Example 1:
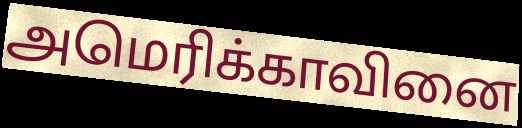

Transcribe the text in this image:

அமெரிக்காவினை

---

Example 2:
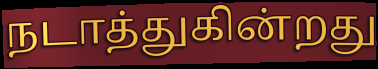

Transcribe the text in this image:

நடாத்துகின்றது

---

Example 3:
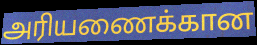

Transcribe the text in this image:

அரியணைக்கான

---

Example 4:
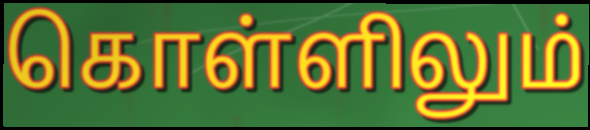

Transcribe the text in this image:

கொள்ளிலும்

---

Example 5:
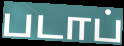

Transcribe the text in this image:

படாப்